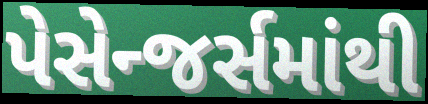
પેસેન્જર્સમાંથી